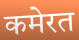
कमेरत